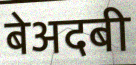
बेअदबी